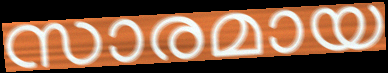
സാരമായ